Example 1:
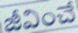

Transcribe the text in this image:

జీవించే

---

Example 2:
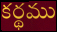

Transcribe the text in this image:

కర్థము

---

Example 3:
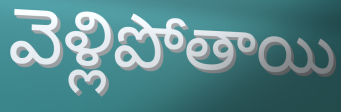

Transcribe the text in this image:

వెళ్లిపోతాయి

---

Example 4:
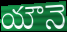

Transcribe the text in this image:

యౌనె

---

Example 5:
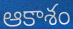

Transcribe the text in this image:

ఆకాశం